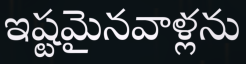
ఇష్టమైనవాళ్లను